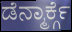
ಡೆನ್ಮಾರ್ಕ್ಗೆ